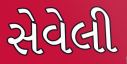
સેવેલી